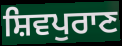
ਸ਼ਿਵਪੁਰਾਣ